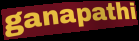
ganapathi